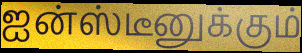
ஐன்ஸ்டீனுக்கும்